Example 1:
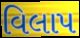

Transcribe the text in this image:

વિલાપ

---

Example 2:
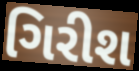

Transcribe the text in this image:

ગિરીશ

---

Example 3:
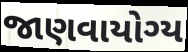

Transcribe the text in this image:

જાણવાયોગ્ય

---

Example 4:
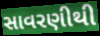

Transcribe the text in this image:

સાવરણીથી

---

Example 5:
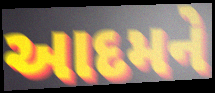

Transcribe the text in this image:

આદમને